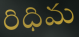
రిధిమ